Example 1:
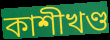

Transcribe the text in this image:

কাশীখণ্ড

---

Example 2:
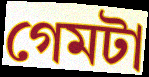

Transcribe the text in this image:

গেমটা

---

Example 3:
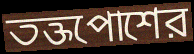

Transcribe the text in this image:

তক্তপোশের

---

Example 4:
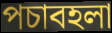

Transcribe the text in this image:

পচাবহলা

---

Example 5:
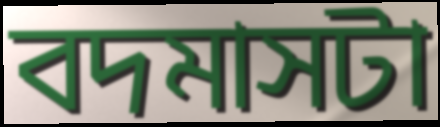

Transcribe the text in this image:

বদমাসটা